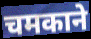
चमकाने